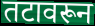
तटावरून